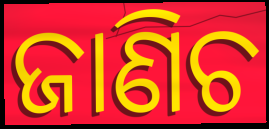
ଜାଣିଚ